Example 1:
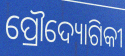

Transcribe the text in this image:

ପ୍ରୌଦ୍ୟୋଗିକୀ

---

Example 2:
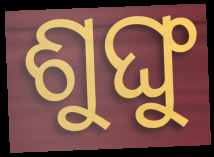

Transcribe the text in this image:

ଶୁଙ୍ଘୁ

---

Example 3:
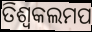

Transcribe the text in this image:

ତିଶ୍ୱକଲମପ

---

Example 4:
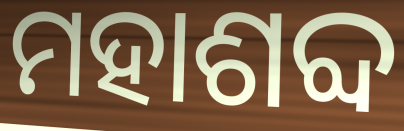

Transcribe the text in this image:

ମହାଶବ୍ଦ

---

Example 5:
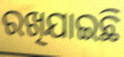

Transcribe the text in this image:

ରଖିଯାଇଛି